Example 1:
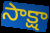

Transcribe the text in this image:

సాక్షా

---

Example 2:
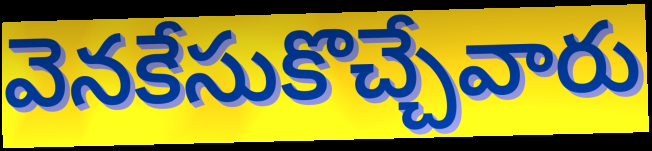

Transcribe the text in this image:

వెనకేసుకొచ్చేవారు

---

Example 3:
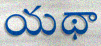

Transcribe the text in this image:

యథా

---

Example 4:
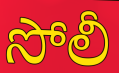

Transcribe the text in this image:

సోలీ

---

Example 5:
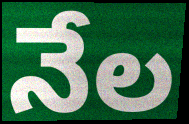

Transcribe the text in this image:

నేల